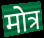
मोत्र